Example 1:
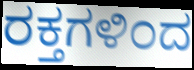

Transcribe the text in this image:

ರಕ್ತಗಳಿಂದ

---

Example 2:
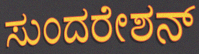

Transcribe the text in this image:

ಸುಂದರೇಶನ್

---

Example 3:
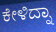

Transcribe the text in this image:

ಕೇಳಿದ್ನಾ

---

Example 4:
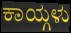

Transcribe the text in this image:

ಕಾಯ್ಗಳು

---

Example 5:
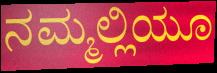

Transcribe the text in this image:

ನಮ್ಮಲ್ಲಿಯೂ